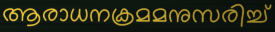
ആരാധനക്രമമനുസരിച്ച്